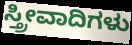
ಸ್ತ್ರೀವಾದಿಗಳು